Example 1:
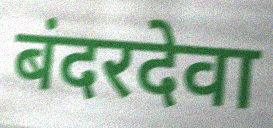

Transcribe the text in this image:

बंदरदेवा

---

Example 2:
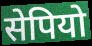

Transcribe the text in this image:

सेपियो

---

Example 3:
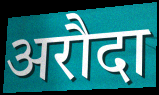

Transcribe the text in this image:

अरौदा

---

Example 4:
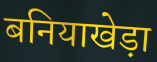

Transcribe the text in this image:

बनियाखेड़ा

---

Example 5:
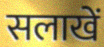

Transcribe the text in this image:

सलाखें